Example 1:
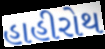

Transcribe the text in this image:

હાહીરોથ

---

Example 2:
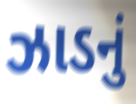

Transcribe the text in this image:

ઝાડનું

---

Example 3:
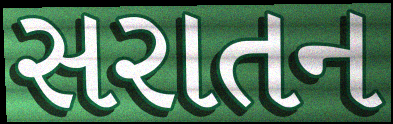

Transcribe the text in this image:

સરાતન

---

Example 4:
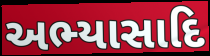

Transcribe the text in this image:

અભ્યાસાદિ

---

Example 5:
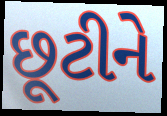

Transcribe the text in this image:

છૂટીને